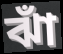
ঝাঁ